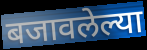
बजावलेल्या